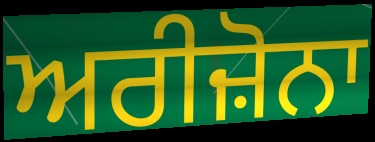
ਅਰੀਜ਼ੋਨਾ